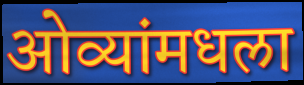
ओव्यांमधला